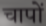
चापों